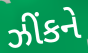
ઝીંકને